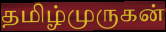
தமிழ்முருகன்